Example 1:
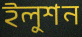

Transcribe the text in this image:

ইলুশন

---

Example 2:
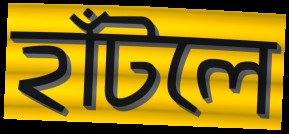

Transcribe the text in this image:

হাঁটলে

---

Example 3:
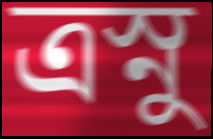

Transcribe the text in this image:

ত্রস্নু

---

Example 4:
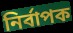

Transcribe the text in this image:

নির্বাপক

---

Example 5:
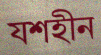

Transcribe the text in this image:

যশহীন